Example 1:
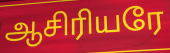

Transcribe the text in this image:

ஆசிரியரே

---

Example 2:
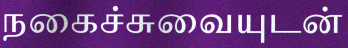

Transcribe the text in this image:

நகைச்சுவையுடன்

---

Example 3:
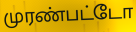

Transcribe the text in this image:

முரண்பட்டோ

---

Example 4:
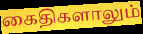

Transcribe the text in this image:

கைதிகளாலும்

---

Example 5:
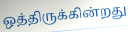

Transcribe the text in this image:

ஒத்திருக்கின்றது